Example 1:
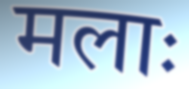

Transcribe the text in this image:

मलाः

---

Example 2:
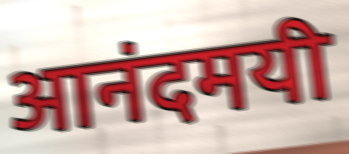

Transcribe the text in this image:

आनंदमयी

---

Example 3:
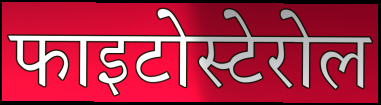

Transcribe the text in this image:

फाइटोस्टेरोल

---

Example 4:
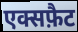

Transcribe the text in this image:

एक्सफ़ैट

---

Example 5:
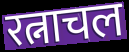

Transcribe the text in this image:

रत्नाचल